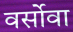
वर्सोवा